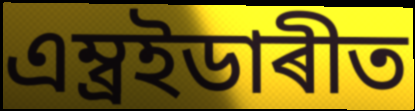
এম্ব্ৰইডাৰীত